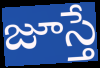
జూస్తే